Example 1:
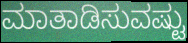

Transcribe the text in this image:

ಮಾತಾಡಿಸುವಷ್ಟು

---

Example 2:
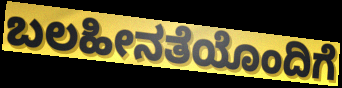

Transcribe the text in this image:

ಬಲಹೀನತೆಯೊಂದಿಗೆ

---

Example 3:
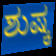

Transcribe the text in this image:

ಶುಷ್ಕ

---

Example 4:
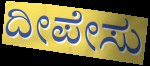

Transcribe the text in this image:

ದೀಪೇಸು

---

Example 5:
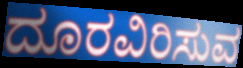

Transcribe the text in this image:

ದೂರವಿರಿಸುವ